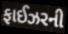
ફાઈઝરની